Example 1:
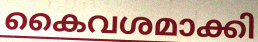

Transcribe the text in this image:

കൈവശമാക്കി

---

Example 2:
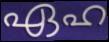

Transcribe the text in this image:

ഏഹ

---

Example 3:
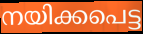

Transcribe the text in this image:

നയിക്കപെട്ട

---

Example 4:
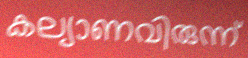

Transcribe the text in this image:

കല്യാണവിരുന്ന്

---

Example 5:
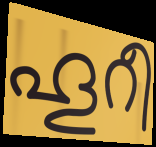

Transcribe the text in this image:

ഹൂറീ